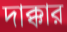
দাক্কার